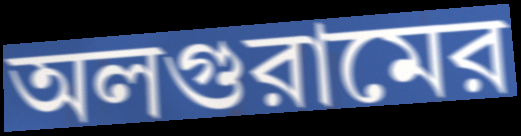
অলগুরামের